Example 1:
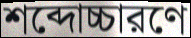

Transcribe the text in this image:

শব্দোচ্চারণে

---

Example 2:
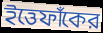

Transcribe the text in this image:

ইত্তেফাঁকের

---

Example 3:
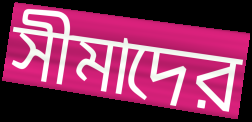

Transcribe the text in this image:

সীমাদের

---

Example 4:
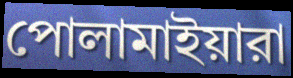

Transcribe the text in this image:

পোলামাইয়ারা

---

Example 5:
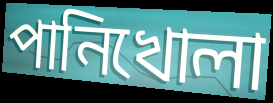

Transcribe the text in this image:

পানিখোলা